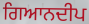
ਗਿਆਨਦੀਪ